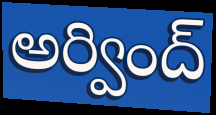
అర్వింద్